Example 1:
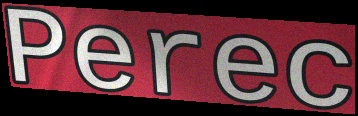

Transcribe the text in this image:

Perec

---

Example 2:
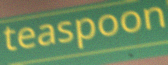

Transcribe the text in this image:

teaspoon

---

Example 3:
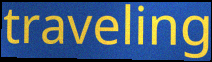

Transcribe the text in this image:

traveling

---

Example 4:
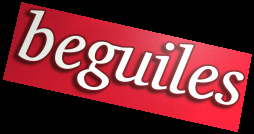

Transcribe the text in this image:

beguiles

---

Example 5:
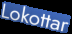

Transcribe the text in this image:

Lokottar